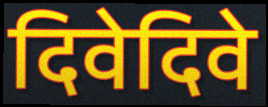
दिवेदिवे